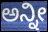
ಅನ್ನೀ